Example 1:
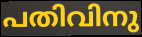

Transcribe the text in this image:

പതിവിനു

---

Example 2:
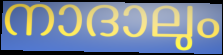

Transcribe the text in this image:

നാദാലും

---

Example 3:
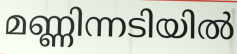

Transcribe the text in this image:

മണ്ണിന്നടിയിൽ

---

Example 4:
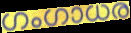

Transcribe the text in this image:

ഗംഗാധര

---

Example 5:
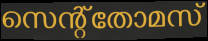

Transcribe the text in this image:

സെന്റ്തോമസ്